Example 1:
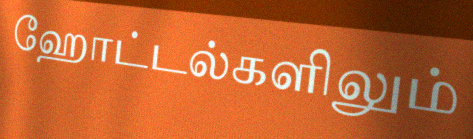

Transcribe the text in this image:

ஹோட்டல்களிலும்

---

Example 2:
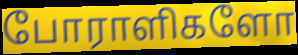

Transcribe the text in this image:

போராளிகளோ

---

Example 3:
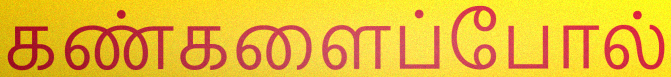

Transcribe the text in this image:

கண்களைப்போல்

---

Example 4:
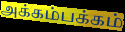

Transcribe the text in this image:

அக்கம்பக்கம்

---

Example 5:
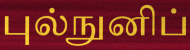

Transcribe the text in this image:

புல்நுனிப்